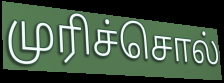
முரிச்சொல்